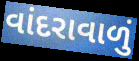
વાંદરાવાળું